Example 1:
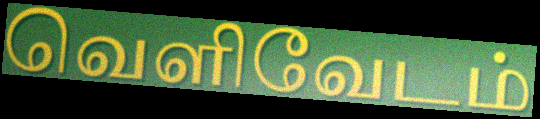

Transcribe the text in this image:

வெளிவேடம்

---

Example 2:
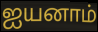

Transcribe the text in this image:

ஐயனாம்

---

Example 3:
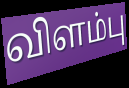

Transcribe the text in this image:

விளம்பு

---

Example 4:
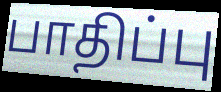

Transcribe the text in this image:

பாதிப்பு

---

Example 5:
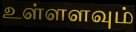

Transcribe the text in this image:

உள்ளளவும்